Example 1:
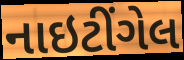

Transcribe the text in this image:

નાઇટીંગેલ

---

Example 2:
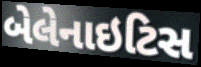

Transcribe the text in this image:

બેલેનાઇટિસ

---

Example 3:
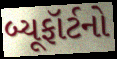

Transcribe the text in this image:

બ્યૂફૉર્ટનો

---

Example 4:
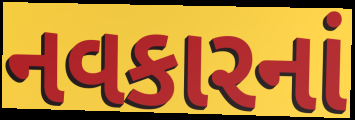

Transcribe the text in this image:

નવકારનાં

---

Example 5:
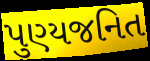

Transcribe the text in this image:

પુણ્યજનિત